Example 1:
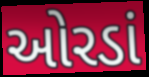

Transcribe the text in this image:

ઓરડાં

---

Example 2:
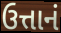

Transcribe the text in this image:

ઉત્તાનં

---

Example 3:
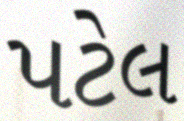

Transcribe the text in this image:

પટેલ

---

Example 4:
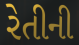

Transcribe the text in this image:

રેતીની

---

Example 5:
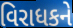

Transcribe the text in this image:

વિરાધકને